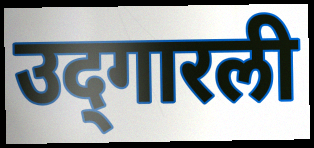
उद्‌गारली